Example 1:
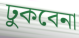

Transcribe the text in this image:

ঢুকবেনা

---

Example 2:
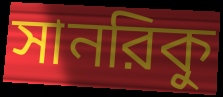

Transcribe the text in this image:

সানরিকু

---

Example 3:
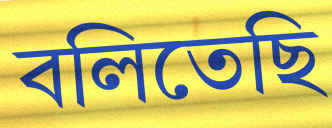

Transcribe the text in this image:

বলিতেছি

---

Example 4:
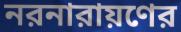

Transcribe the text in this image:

নরনারায়ণের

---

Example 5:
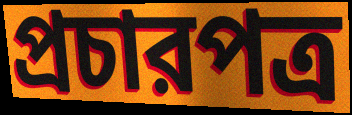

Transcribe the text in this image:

প্রচারপত্র